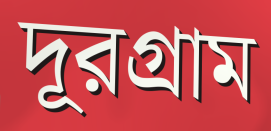
দূরগ্রাম